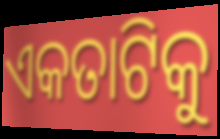
ଏକତାଟିକୁ